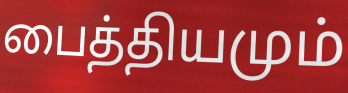
பைத்தியமும்